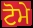
ਟੋਮੇ